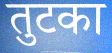
तुटका